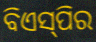
ବିଏସ୍‌ପିର